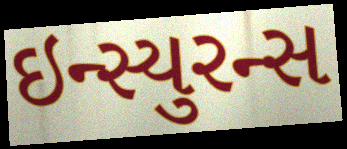
ઇન્સ્યુરન્સ